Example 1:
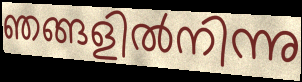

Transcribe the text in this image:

ഞങ്ങളിൽനിന്നു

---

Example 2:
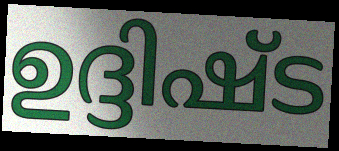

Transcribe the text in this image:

ഉദ്ദിഷ്ട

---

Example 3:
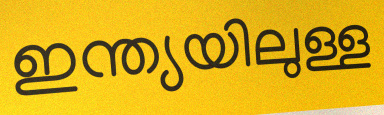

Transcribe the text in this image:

ഇന്ത്യയിലുള്ള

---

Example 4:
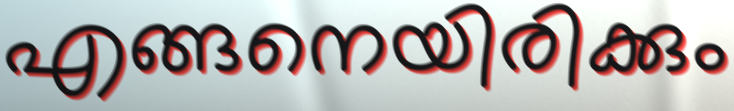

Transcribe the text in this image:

എങ്ങനെയിരിക്കും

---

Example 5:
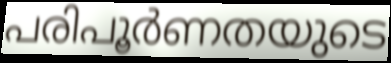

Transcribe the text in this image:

പരിപൂർണതയുടെ